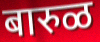
बारुळ